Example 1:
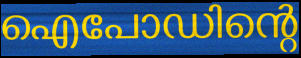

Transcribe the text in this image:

ഐപോഡിന്റെ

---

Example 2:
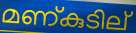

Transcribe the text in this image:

മണ്കുടില്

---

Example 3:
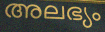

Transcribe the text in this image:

അലഭ്യം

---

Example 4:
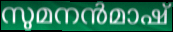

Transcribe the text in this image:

സുമനൻമാഷ്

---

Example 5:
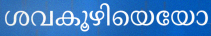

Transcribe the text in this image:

ശവകൂഴിയെയോ